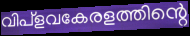
വിപ്ളവകേരളത്തിന്റെ